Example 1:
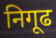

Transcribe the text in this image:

निगूढ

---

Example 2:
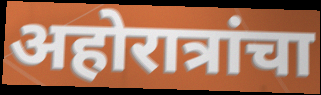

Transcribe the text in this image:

अहोरात्रांचा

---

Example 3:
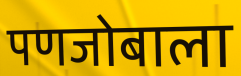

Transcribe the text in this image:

पणजोबाला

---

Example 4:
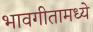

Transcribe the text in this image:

भावगीतामध्ये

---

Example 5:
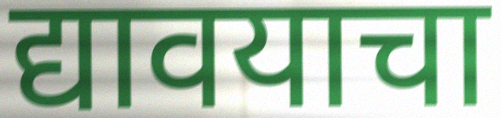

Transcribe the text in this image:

द्यावयाचा